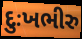
દુઃખભીરુ